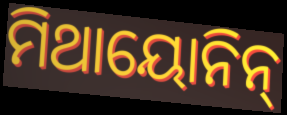
ମିଥାୟୋନିନ୍